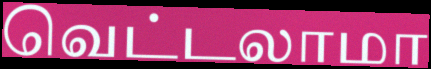
வெட்டலாமா